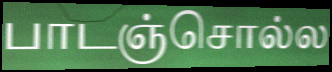
பாடஞ்சொல்ல